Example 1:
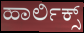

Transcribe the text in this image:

ಹಾರ್ಲಿಕ್ಸ್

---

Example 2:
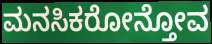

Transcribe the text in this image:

ಮನಸಿಕರೋನ್ತೋವ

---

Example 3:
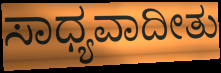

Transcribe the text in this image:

ಸಾಧ್ಯವಾದೀತು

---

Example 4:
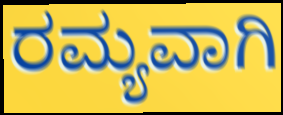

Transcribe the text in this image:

ರಮ್ಯವಾಗಿ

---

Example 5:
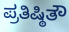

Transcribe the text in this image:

ಪ್ರತಿಷ್ಠಿತೌ